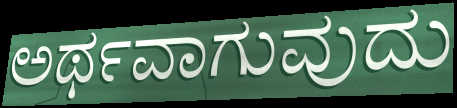
ಅರ್ಥವಾಗುವುದು